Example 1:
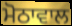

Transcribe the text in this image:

ਮੋਠਾਵਾਲ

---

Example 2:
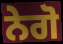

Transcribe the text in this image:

ਨੇਗੋ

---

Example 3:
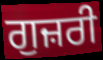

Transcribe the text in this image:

ਗੁਜ਼ਰੀ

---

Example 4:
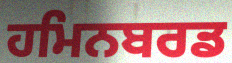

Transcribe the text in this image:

ਹਮਿਨਬਰਡ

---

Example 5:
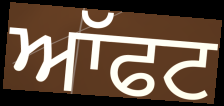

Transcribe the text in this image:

ਆੱਫਟ